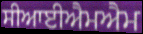
ਸੀਆਈਐਮਐਮ